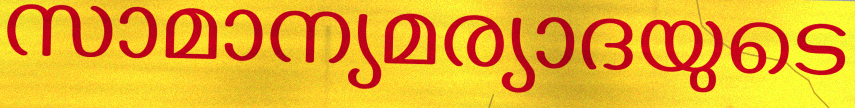
സാമാന്യമര്യാദയുടെ